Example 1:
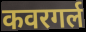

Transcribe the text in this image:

कवरगर्ल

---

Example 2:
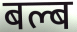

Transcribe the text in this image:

बल्ब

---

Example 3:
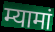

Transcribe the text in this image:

म्यामां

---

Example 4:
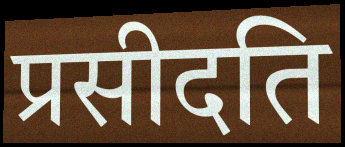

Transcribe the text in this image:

प्रसीदति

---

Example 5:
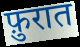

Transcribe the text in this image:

फ़ुरात